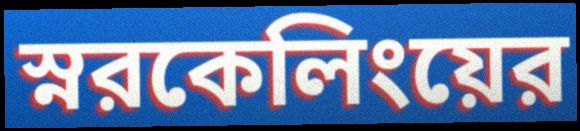
স্নরকেলিংয়ের